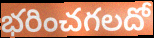
భరించగలదో